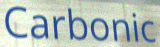
Carbonic